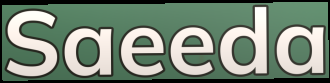
Saeeda